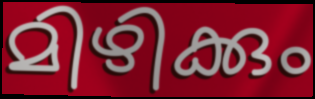
മിഴിക്കും